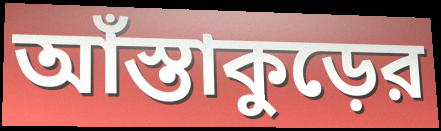
আঁস্তাকুড়ের